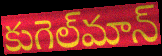
కుగెల్‌మాన్